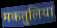
मकतुलिया